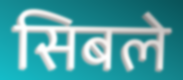
सिबले